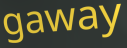
gaway